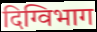
दिग्विभाग